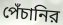
পেঁচানির